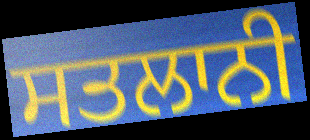
ਸਤਲਾਨੀ